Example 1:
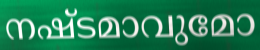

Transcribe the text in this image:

നഷ്ടമാവുമോ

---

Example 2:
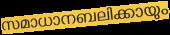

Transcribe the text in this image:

സമാധാനബലിക്കായും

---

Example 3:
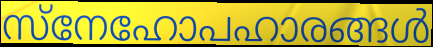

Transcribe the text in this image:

സ്നേഹോപഹാരങ്ങൾ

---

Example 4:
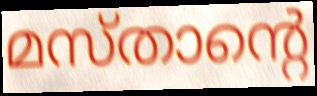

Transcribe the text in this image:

മസ്താന്റെ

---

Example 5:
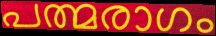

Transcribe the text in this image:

പത്മരാഗം